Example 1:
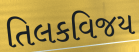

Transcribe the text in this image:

તિલકવિજય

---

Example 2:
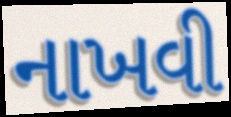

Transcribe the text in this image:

નાખવી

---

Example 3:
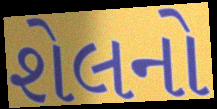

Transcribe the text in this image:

શેલનો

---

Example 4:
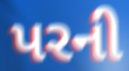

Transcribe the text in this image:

પરની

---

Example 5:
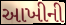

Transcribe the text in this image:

આખીની